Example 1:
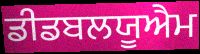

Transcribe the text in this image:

ਡੀਡਬਲਯੂਐਮ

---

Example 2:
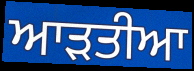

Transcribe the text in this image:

ਆੜਤੀਆ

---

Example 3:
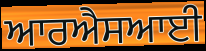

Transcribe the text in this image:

ਆਰਐਸਆਈ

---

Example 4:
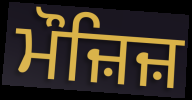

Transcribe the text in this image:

ਮੌਜ਼ਿਜ਼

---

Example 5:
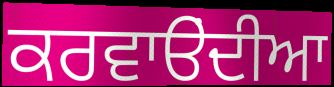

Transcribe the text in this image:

ਕਰਵਾੳਂਦੀਆ